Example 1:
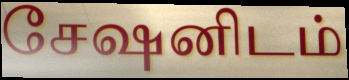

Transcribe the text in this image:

சேஷனிடம்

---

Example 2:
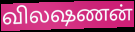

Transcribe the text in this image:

விலஷணன்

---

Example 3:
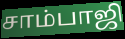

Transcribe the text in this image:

சாம்பாஜி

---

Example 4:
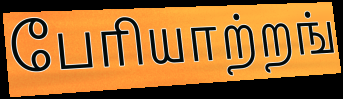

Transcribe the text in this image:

பேரியாற்றங்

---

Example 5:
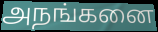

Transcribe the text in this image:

அநங்கனை